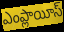
ఎంప్లాయీస్